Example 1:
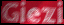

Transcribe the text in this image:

Giezi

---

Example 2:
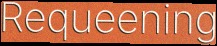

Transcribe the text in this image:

Requeening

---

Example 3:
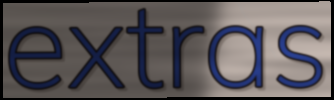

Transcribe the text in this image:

extras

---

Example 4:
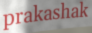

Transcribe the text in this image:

prakashak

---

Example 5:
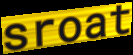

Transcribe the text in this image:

sroat